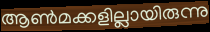
ആൺമക്കളില്ലായിരുന്നു